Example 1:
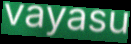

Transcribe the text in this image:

vayasu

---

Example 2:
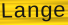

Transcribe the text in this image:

Lange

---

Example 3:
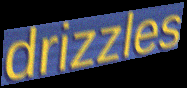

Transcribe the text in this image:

drizzles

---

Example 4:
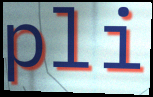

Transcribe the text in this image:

pli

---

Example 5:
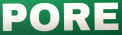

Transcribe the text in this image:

PORE